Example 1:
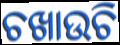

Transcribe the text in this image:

ଚଖାଉଚି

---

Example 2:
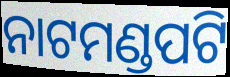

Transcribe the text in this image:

ନାଟମଣ୍ଡପଟି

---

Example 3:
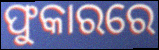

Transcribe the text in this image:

ଫୁକାରରେ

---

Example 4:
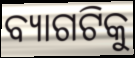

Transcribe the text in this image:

ବ୍ୟାଗଟିକୁ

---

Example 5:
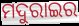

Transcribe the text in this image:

ମଦୁରାଇର